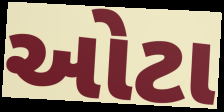
ઓટા